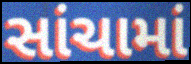
સાંચામાં